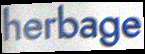
herbage